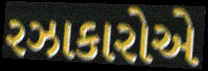
રઝાકારોએ